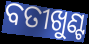
ବତୀଖୁଣ୍ଟ